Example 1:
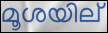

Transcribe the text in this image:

മൂശയില്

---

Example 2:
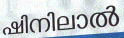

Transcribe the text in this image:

ഷിനിലാൽ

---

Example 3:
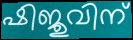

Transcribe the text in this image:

ഷിജുവിന്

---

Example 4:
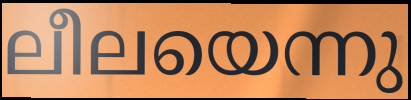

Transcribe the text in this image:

ലീലയെന്നു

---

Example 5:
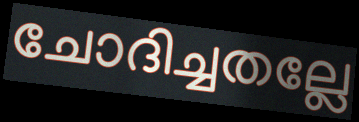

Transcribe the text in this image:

ചോദിച്ചതല്ലേ